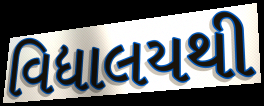
વિદ્યાલયથી